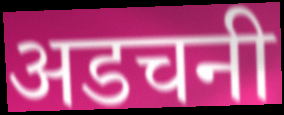
अडचनी